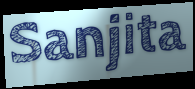
Sanjita